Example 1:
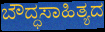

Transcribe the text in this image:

ಬೌದ್ಧಸಾಹಿತ್ಯದ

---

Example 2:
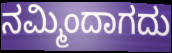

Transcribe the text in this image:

ನಮ್ಮಿಂದಾಗದು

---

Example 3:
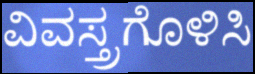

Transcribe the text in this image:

ವಿವಸ್ತ್ರಗೊಳಿಸಿ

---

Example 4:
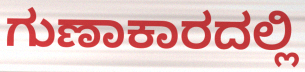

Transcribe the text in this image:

ಗುಣಾಕಾರದಲ್ಲಿ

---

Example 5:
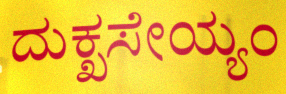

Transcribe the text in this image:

ದುಕ್ಖಸೇಯ್ಯಂ